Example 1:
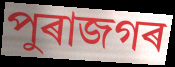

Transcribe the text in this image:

পুৰাজগৰ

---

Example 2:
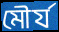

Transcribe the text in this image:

মৌৰ্য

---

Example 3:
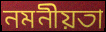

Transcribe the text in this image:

নমনীয়তা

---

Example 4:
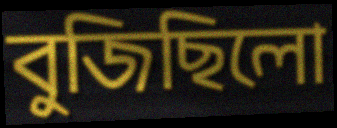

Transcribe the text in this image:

বুজিছিলো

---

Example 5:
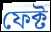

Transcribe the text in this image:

ফেক্ট